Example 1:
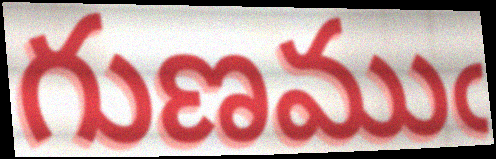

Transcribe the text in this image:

గుణముఁ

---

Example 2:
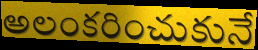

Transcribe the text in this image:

అలంకరించుకునే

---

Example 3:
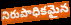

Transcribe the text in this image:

నిరుపాధికమైన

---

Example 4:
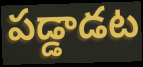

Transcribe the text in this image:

పడ్డాడట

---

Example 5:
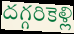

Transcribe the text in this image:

దగ్గరికెళ్లి